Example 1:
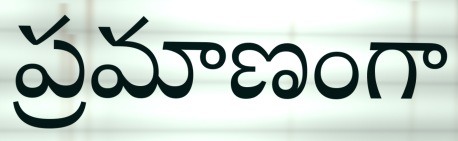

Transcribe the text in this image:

ప్రమాణంగా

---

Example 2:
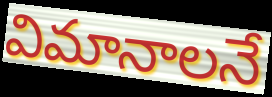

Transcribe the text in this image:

విమానాలనే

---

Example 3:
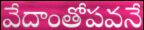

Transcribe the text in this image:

వేదాంతోపవనే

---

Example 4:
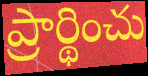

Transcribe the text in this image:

ప్రార్థించు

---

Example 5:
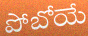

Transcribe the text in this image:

పోబోయే